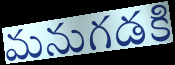
మనుగడకి